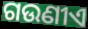
ଗଉଣୀଏ